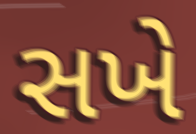
સખે